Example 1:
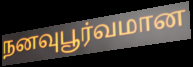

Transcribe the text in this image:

நனவுபூர்வமான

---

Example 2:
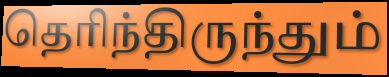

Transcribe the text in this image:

தெரிந்திருந்தும்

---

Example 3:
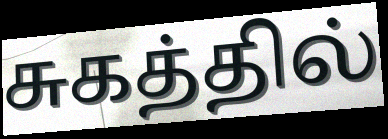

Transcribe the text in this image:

சுகத்தில்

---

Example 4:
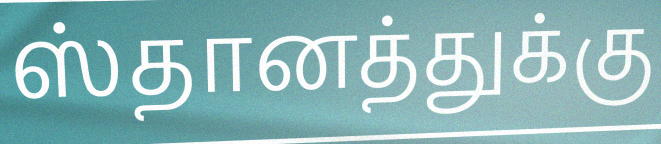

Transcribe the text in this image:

ஸ்தானத்துக்கு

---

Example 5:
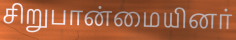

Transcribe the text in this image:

சிறுபான்மையினர்